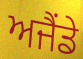
ਅਜੈਂਡੇ